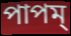
পাপম্